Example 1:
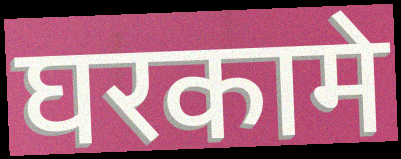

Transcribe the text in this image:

घरकामे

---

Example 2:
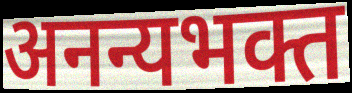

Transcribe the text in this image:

अनन्यभक्त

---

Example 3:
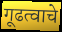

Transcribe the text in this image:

गूढत्वाचे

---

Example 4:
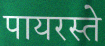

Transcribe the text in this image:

पायरस्ते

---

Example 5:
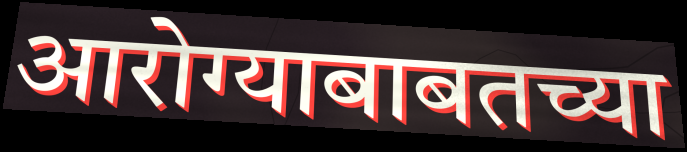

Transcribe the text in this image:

आरोग्याबाबतच्या